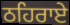
ਠਹਿਰਾਏ